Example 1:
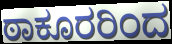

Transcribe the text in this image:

ಠಾಕೂರರಿಂದ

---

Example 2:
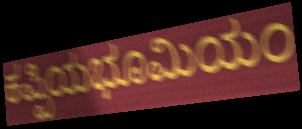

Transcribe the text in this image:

ಕಪ್ಪಿಯಭೂಮಿಯಂ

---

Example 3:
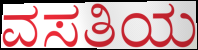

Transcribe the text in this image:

ವಸತಿಯ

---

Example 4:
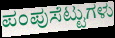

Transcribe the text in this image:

ಪಂಪುಸೆಟ್ಟುಗಳು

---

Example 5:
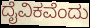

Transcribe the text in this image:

ದೈವಿಕವೆಂದು